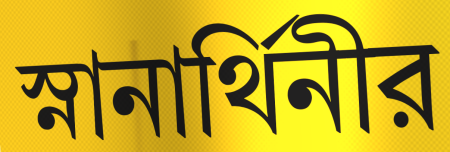
স্নানার্থিনীর